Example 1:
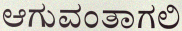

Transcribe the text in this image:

ಆಗುವಂತಾಗಲಿ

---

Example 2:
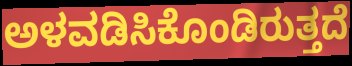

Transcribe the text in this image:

ಅಳವಡಿಸಿಕೊಂಡಿರುತ್ತದೆ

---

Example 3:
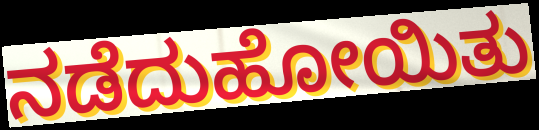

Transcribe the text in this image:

ನಡೆದುಹೋಯಿತು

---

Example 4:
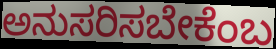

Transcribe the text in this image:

ಅನುಸರಿಸಬೇಕೆಂಬ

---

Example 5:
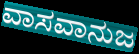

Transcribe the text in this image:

ವಾಸವಾನುಜ